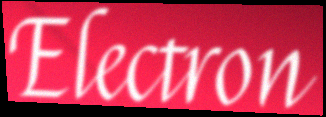
Electron